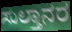
ಸುಲ್ತಾನರ